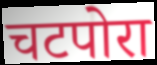
चटपोरा